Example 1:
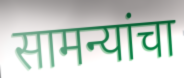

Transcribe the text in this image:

सामन्यांचा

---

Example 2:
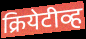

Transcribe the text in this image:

क्रियेटीव्ह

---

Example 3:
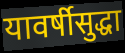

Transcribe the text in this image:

यावर्षीसुद्धा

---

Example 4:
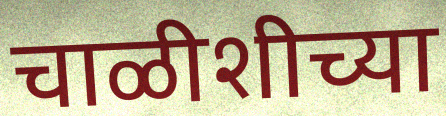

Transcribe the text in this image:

चाळीशीच्या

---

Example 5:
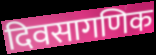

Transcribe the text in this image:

दिवसागणिक